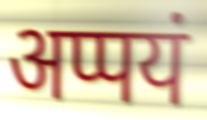
अप्पयं